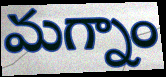
మగ్నాం